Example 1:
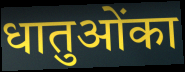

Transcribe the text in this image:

धातुओंका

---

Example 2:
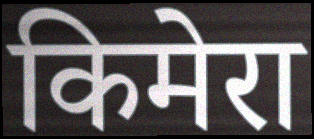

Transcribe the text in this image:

किमेरा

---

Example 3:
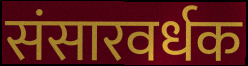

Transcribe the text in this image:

संसारवर्धक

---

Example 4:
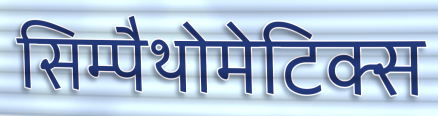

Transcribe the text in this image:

सिम्पैथोमेटिक्स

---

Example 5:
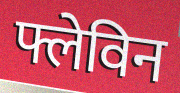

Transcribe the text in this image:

फ्लेविन